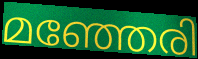
മഞ്ഞേരി